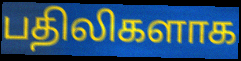
பதிலிகளாக